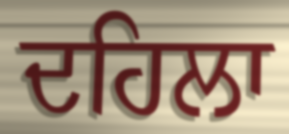
ਦਹਿਲਾ